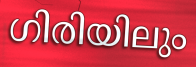
ഗിരിയിലും